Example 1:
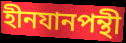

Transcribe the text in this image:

হীনযানপন্থী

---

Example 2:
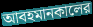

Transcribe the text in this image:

আবহমানকালের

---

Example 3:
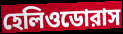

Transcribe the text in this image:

হেলিওডোরাস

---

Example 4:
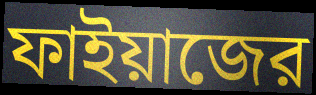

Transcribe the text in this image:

ফাইয়াজের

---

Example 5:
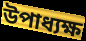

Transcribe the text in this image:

উপাধ্যক্ষ